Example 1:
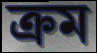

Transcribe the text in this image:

ক্রম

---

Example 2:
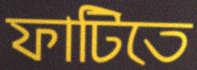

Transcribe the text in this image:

ফাটিতে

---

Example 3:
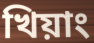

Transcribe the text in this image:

খিয়াং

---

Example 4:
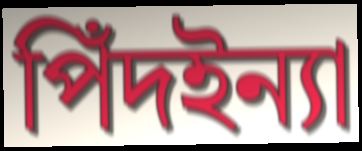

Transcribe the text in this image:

পিঁদইন্যা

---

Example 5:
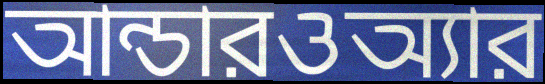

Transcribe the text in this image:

আন্ডারওঅ্যার